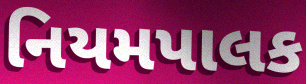
નિયમપાલક